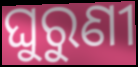
ଘୁରୁଣୀ